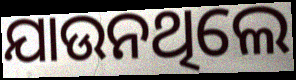
ଯାଉନଥିଲେ